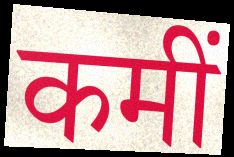
कमीं